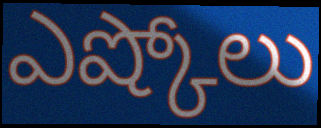
ఎష్కోలు